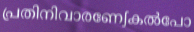
പ്രതിനിവാരണേഽകൽപോ